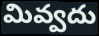
మివ్వదు